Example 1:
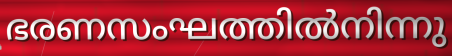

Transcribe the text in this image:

ഭരണസംഘത്തിൽനിന്നു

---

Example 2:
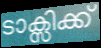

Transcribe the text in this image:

ടാക്സിക്ക്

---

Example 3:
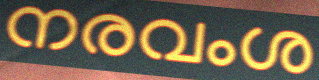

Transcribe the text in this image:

നരവംശ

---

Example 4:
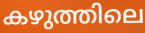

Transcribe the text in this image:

കഴുത്തിലെ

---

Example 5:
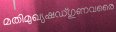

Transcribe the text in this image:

മതിമുഖ്യഷഡ്ഗുണവരൈ